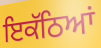
ਇਕੱਠਿਆਂ